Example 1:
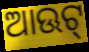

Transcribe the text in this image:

ଆଊଟ୍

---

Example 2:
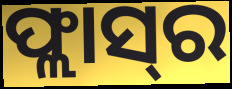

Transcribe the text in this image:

ଫ୍ଲାସ୍‌ର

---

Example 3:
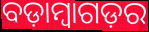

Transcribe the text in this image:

ବଡ଼ାମ୍ବାଗଡ଼ର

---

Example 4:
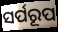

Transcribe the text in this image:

ସର୍ପରୂପ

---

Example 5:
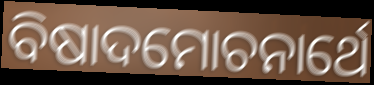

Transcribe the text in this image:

ବିଷାଦମୋଚନାର୍ଥେ